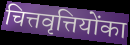
चित्तवृत्तियोंका